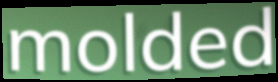
molded